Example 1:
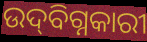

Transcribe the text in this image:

ଉଦ୍‌ବିଗ୍ନକାରୀ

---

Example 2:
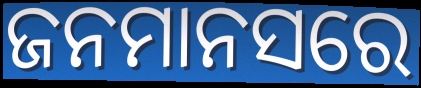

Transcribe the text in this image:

ଜନମାନସରେ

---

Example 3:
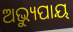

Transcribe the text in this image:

ଅଭ୍ୟୁପାୟ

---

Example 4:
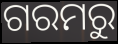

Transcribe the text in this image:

ଗରମରୁ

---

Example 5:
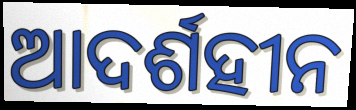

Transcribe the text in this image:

ଆଦର୍ଶହୀନ